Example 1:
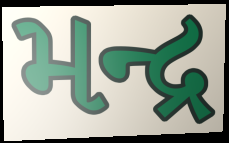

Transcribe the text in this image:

મન્દ્ર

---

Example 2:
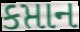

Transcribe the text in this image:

કપ્તાન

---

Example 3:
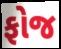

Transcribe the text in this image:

ફોજ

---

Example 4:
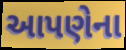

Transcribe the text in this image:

આપણેના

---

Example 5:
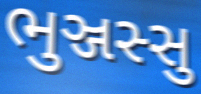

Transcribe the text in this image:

ભુઞ્જસ્સુ